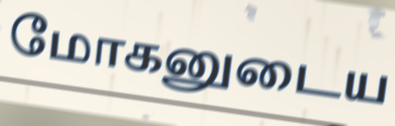
மோகனுடைய